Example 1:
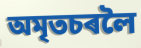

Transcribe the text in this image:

অমৃতচৰলৈ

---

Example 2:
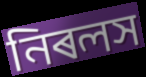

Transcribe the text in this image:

নিৰলস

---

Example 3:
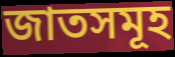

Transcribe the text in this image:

জাতসমূহ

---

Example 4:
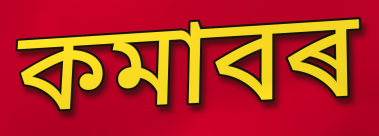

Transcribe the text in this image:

কমাবৰ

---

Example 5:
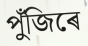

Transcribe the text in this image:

পুঁজিৰে